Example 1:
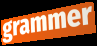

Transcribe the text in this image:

grammer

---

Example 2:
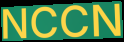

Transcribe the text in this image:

NCCN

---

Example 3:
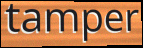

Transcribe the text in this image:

tamper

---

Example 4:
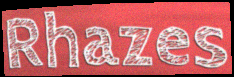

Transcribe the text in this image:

Rhazes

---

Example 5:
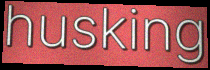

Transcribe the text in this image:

husking